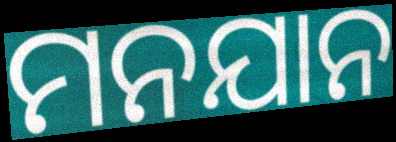
ମନଯାନ